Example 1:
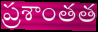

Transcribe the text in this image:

ప్రశాంతత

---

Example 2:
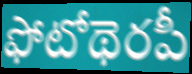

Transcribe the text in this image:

ఫోటోథెరపీ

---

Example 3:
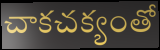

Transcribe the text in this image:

చాకచక్యంతో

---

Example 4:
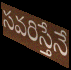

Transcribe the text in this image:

సవరిస్తేనే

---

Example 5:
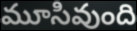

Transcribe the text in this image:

మూసివుంది